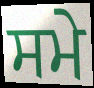
ਸਮੇ